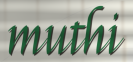
muthi